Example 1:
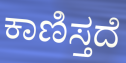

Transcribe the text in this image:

ಕಾಣಿಸ್ತದೆ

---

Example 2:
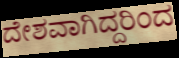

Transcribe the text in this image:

ದೇಶವಾಗಿದ್ದರಿಂದ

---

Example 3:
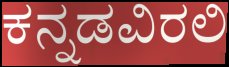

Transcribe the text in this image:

ಕನ್ನಡವಿರಲಿ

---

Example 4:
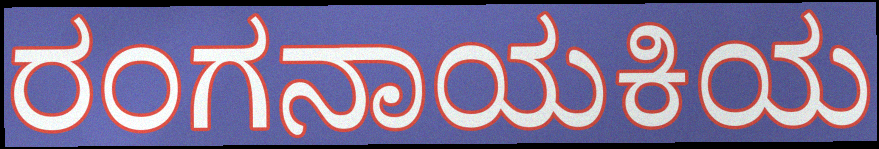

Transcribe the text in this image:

ರಂಗನಾಯಕಿಯ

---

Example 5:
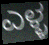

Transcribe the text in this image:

ಎಳ್ಳ